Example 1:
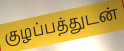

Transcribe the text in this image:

குழப்பத்துடன்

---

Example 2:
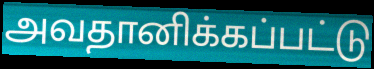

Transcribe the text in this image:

அவதானிக்கப்பட்டு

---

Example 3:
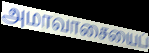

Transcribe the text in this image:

அமாவாசையைப்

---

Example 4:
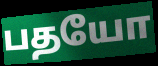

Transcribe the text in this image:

பதயோ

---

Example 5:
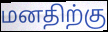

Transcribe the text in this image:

மனதிற்கு